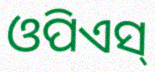
ଓପିଏସ୍